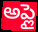
అప్లై